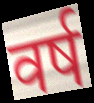
वर्ष